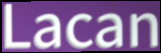
Lacan